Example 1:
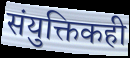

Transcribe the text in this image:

संयुक्तिकही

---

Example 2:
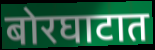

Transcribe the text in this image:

बोरघाटात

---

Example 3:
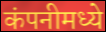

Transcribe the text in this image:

कंपनीमध्ये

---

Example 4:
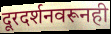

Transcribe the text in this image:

दूरदर्शनवरूनही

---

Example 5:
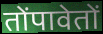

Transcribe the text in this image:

तोंपावेतों